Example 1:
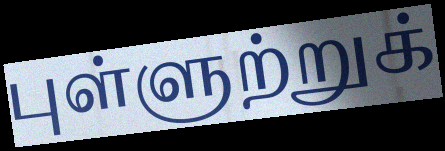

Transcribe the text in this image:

புள்ளுற்றுக்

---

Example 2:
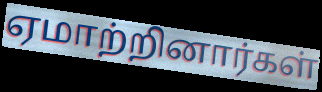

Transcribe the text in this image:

ஏமாற்றினார்கள்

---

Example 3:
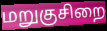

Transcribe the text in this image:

மறுகுசிறை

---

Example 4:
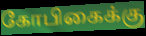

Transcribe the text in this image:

கோபிகைக்கு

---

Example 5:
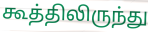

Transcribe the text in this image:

கூத்திலிருந்து